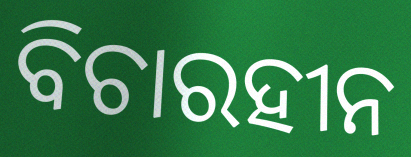
ବିଚାରହୀନ